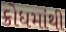
ક્રોધમાંથી